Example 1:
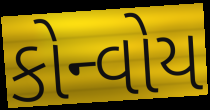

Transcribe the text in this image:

કોન્વોય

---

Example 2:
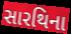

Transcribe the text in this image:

સારથિના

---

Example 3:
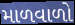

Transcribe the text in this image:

માળવાળો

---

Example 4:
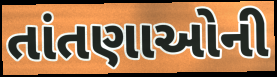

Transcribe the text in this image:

તાંતણાઓની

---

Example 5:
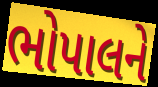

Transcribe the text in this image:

ભોપાલને